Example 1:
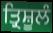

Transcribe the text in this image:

ਤ੍ਰਿਸ਼ੂਲੰ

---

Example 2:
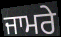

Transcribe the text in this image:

ਜਾਮਰੇ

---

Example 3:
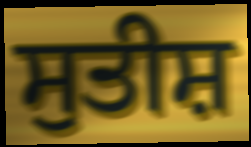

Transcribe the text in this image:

ਸੁਤੀਸ਼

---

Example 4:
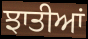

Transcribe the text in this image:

ਝਾਤੀਆਂ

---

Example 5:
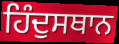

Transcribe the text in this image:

ਹਿੰਦੁਸਥਾਨ